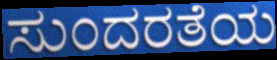
ಸುಂದರತೆಯ